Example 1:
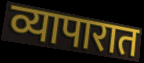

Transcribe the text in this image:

व्यापारात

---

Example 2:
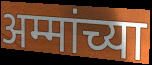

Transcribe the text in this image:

अम्मांच्या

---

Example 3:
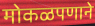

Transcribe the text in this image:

मोकळपणाने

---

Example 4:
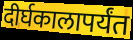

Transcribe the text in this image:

दीर्घकालापर्यंत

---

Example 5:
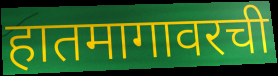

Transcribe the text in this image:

हातमागावरची